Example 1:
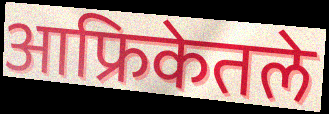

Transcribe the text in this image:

आफ्रिकेतले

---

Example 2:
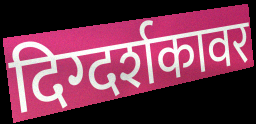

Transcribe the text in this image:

दिग्दर्शकावर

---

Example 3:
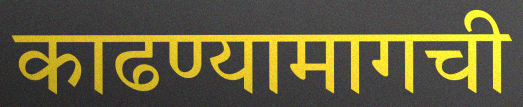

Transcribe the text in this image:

काढण्यामागची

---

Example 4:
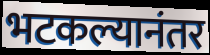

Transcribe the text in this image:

भटकल्यानंतर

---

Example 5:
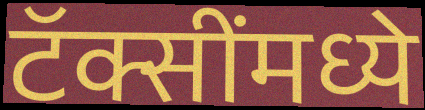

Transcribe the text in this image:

टॅक्सींमध्ये